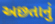
અછતાનું